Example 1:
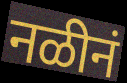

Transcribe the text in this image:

नळीनं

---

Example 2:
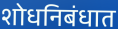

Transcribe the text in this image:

शोधनिबंधात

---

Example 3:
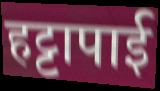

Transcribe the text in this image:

हट्टापाई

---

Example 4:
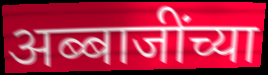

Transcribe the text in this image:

अब्बाजींच्या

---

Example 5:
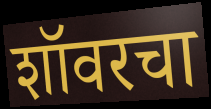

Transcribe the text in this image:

शॉवरचा